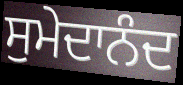
ਸੁਮੇਦਾਨੰਦ